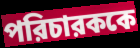
পরিচারককে